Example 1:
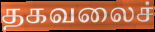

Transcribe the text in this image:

தகவலைச்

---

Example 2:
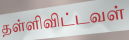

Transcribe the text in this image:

தள்ளிவிட்டவள்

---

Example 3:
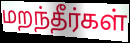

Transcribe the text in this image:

மறந்தீர்கள்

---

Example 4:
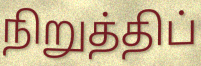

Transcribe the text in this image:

நிறுத்திப்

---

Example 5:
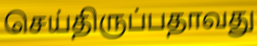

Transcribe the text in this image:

செய்திருப்பதாவது